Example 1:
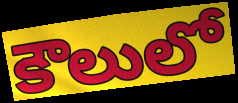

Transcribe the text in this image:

కౌలులో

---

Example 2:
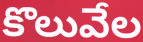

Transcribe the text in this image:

కొలువేల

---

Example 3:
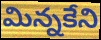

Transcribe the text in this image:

మిన్నకేని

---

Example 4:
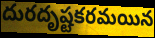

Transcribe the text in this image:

దురదృష్టకరమయిన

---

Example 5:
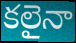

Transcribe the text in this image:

కలైనా